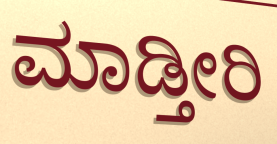
ಮಾಡ್ತೀರಿ